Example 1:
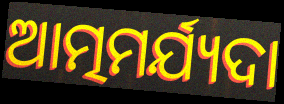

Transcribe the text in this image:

ଆତ୍ମମର୍ଯ୍ୟଦା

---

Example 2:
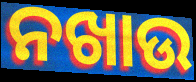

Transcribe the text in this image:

ନଖାଉ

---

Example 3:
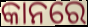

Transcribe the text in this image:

କାନରେ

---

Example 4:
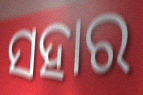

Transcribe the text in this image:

ସହାର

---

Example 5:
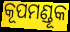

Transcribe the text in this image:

କୂପମଣ୍ଡୂକ